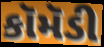
કૉમૅડી